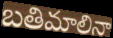
బతిమాలినా